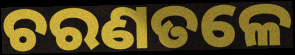
ଚରଣତଳେ